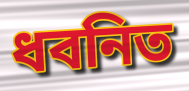
ধবনিত